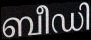
ബീഡി